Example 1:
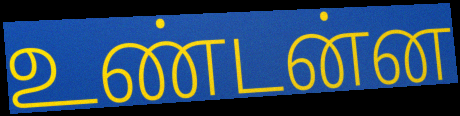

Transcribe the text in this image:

உண்டன்ன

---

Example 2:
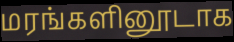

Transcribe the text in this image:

மரங்களினூடாக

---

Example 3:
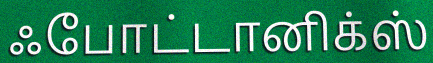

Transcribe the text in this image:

ஃபோட்டானிக்ஸ்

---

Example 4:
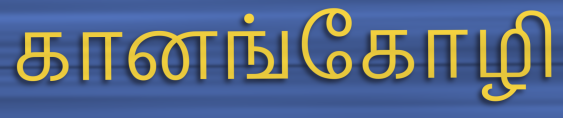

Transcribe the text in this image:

கானங்கோழி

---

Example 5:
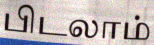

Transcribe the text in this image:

பிடலாம்